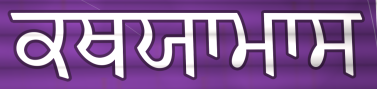
ਕਥਯਾਮਾਸ